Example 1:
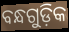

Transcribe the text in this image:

ବନ୍ଧଗୁଡ଼ିକ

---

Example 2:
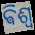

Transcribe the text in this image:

ଵିଶ୍ୱ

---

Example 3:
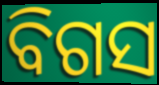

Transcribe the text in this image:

ବିଗସ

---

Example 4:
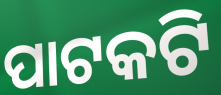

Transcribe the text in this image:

ପାଟକଟି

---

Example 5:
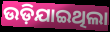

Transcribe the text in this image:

ଉଡ଼ିଯାଇଥିଲା